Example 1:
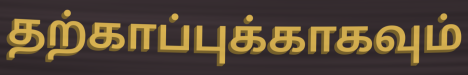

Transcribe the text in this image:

தற்காப்புக்காகவும்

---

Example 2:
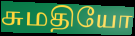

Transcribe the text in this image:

சுமதியோ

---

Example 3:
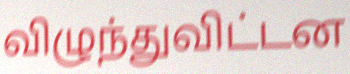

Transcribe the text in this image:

விழுந்துவிட்டன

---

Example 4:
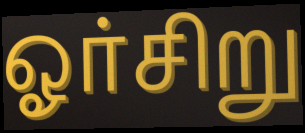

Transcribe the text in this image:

ஓர்சிறு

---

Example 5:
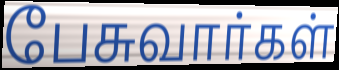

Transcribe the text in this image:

பேசுவார்கள்